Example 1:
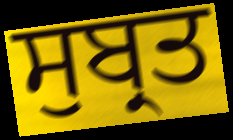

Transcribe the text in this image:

ਸੁਬ੍ਰਤ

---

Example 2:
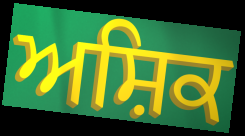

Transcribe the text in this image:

ਅਸ਼ਿਕ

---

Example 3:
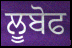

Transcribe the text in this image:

ਲੂਬੋਫ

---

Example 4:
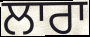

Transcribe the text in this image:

ਲਾਰਾ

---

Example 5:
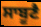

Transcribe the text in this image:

ਸਾਬੂਣੈ